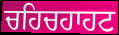
ਚਹਿਚਹਾਹਟ